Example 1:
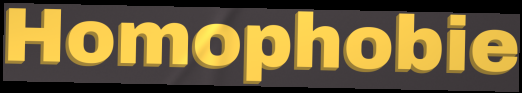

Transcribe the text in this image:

Homophobie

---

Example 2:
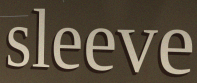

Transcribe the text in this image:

sleeve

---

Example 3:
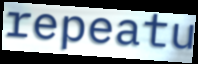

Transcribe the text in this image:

repeatu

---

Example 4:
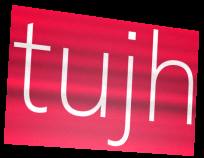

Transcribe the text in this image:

tujh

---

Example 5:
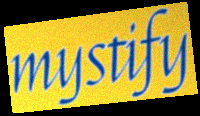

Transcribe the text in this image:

mystify